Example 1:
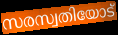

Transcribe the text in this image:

സരസ്വതിയോട്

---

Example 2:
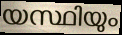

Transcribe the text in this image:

യസ്ഥിയും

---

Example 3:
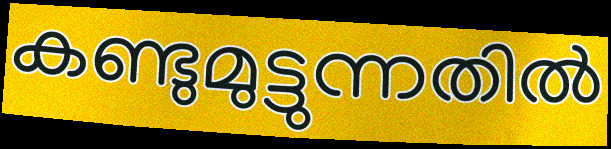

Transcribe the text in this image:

കണ്ടുമുട്ടുന്നതിൽ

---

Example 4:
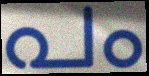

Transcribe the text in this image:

പം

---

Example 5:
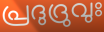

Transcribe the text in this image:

പ്രദുദ്രുവുഃ